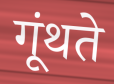
गूंथते